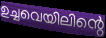
ഉച്ചവെയിലിന്റെ